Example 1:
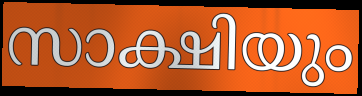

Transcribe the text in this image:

സാക്ഷിയും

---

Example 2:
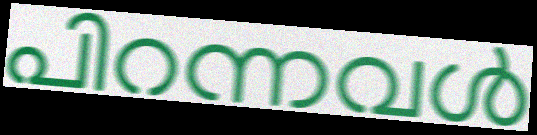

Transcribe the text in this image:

പിറന്നവൾ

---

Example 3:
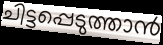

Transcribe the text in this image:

ചിട്ടപ്പെടുത്താൻ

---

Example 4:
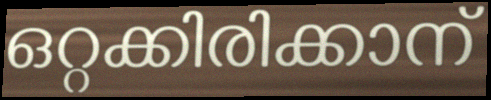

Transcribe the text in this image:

ഒറ്റക്കിരിക്കാന്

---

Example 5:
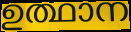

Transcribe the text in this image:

ഉത്ഥാന